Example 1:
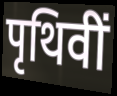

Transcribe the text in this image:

पृथिवीं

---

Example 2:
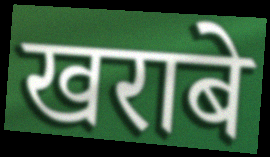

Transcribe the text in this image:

खराबे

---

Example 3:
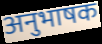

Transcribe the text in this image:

अनुभाषक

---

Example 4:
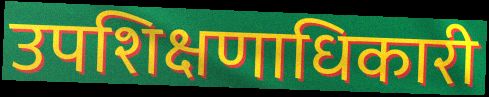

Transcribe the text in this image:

उपशिक्षणाधिकारी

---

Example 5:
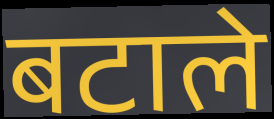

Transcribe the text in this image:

बटाले